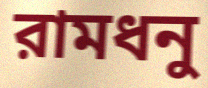
রামধনু